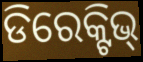
ଡିରେକ୍ଟିଭ୍